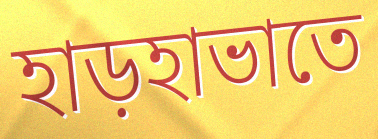
হাড়হাভাতে